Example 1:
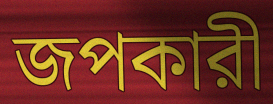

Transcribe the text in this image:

জপকারী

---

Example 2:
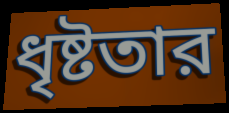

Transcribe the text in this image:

ধৃষ্টতার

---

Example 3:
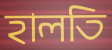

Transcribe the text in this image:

হালতি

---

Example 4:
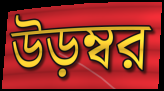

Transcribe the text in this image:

উড়ম্বর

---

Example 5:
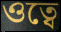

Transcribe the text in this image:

ওত্বে